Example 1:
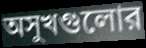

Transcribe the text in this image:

অসুখগুলোর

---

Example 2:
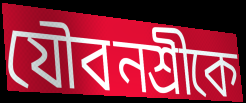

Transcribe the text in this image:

যৌবনশ্রীকে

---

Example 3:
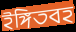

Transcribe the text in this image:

ইঙ্গিতবহ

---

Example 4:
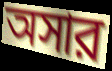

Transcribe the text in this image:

অসার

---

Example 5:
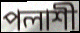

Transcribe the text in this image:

পলাশী